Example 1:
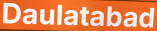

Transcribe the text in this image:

Daulatabad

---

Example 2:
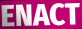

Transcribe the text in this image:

ENACT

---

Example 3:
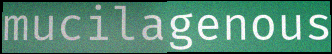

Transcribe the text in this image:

mucilagenous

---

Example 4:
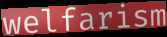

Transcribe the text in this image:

welfarism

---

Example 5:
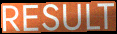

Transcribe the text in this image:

RESULT